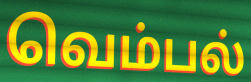
வெம்பல்